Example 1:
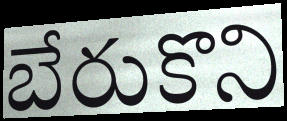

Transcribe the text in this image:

బేరుకొని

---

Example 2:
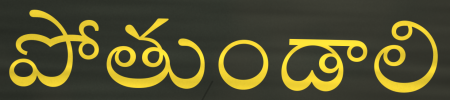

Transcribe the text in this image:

పోతుండాలి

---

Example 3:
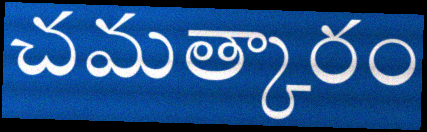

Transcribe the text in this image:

చమత్కారం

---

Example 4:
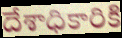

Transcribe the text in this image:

దేశాధికారికి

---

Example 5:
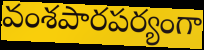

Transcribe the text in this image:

వంశపారపర్యంగా